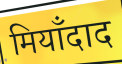
मियाँदाद